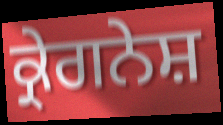
ਕ੍ਰੇਗਨੇਸ਼